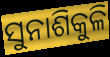
ସୁନାଶିକୁଳି